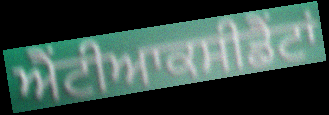
ਐਂਟੀਆਕਸੀਡੈਂਟਾਂ